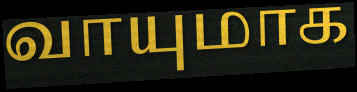
வாயுமாக